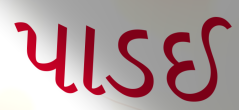
પાડઈ